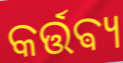
କର୍ତ୍ତଵ୍ୟ